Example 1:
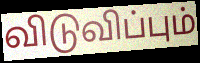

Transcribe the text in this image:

விடுவிப்பும்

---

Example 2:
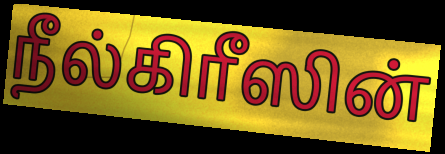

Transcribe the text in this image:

நீல்கிரீஸின்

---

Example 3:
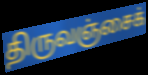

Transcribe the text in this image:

திருவஞ்சைக்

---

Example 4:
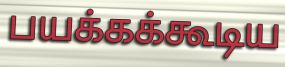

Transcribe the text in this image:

பயக்கக்கூடிய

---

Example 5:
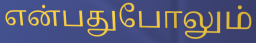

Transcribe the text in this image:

என்பதுபோலும்